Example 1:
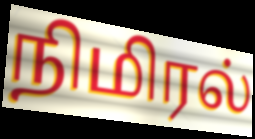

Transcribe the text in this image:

நிமிரல்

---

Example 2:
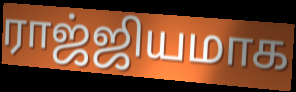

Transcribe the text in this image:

ராஜ்ஜியமாக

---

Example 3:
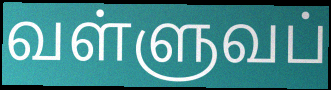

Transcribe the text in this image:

வள்ளுவப்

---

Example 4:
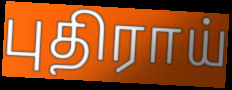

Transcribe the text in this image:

புதிராய்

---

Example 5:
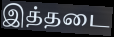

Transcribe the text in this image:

இத்தடை